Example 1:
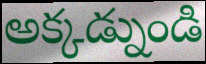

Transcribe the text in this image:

అక్కడ్నుండి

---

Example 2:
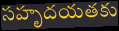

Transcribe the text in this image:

సహృదయతకు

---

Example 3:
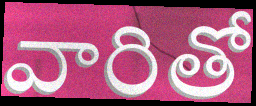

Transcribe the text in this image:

వారితో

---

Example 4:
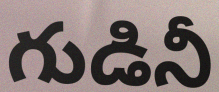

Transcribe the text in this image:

గుడినీ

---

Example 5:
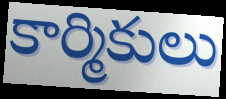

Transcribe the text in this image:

కార్మికులు